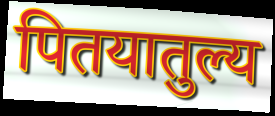
पितयातुल्य